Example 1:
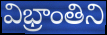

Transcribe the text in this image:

విభ్రాంతిని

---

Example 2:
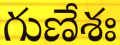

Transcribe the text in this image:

గుణేశః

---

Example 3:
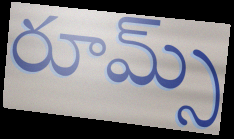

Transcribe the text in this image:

రూమ్స్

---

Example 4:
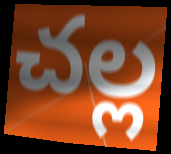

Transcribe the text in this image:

చల్ల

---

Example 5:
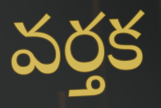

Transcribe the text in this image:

వర్తక